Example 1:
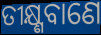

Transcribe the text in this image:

ତୀକ୍ଷ୍ଣବାଣେ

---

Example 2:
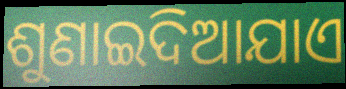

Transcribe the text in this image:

ଶୁଣାଇଦିଆଯାଏ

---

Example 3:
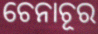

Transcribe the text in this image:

ଚେନାଚୂର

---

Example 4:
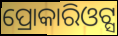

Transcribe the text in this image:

ପ୍ରୋକାରିଓଟ୍ସ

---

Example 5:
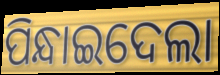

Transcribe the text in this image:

ପିନ୍ଧାଇଦେଲା